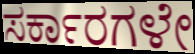
ಸರ್ಕಾರಗಳೇ